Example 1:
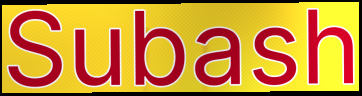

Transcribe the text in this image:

Subash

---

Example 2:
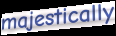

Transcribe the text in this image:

majestically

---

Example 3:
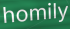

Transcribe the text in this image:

homily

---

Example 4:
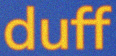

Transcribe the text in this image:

duff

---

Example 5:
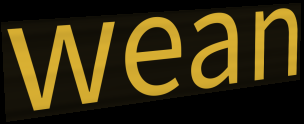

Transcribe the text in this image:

wean